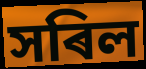
সৰিল